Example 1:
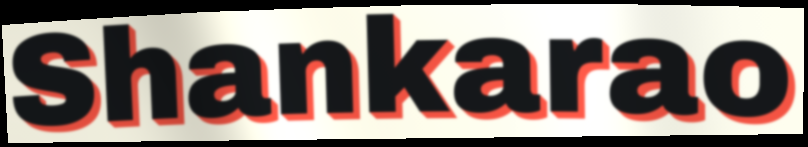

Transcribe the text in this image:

Shankarao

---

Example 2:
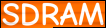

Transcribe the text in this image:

SDRAM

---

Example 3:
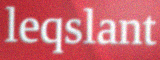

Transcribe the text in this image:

leqslant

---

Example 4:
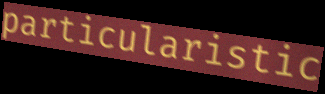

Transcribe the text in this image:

particularistic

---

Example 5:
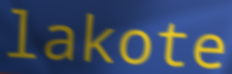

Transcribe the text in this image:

lakote